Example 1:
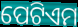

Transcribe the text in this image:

ପେଟିଏମ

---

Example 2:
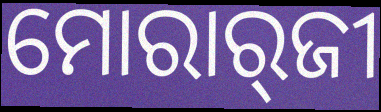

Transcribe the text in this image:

ମୋରାର୍‌ଜୀ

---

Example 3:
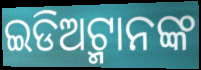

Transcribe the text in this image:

ଇଡିଅଟ୍ମାନଙ୍କ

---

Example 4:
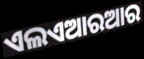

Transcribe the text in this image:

ଏଲଏଆରଆର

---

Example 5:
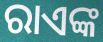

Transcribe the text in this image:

ରାଏଙ୍କ